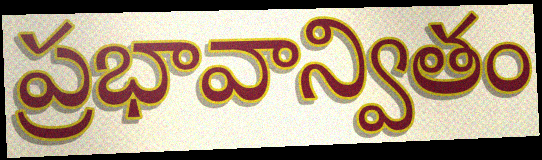
ప్రభావాన్వితం